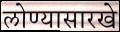
लोण्यासारखे